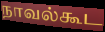
நாவல்கூட